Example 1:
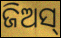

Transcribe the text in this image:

ଜିଅସ୍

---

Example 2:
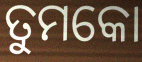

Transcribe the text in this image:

ତୁମକୋ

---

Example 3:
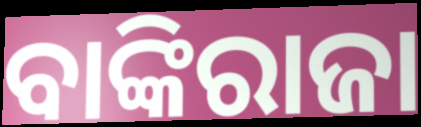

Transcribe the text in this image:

ବାଙ୍କିରାଜା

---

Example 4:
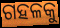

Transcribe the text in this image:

ଗହଳକୁ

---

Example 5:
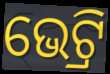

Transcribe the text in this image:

ଭେଟ୍ରି